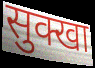
सुक्खा